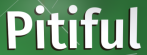
Pitiful